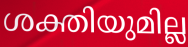
ശക്തിയുമില്ല